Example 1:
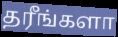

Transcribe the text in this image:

தரீங்களா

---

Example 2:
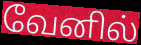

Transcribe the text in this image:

வேனில்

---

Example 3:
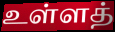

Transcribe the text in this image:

உள்ளத்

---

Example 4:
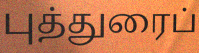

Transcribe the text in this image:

புத்துரைப்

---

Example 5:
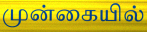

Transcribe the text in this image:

முன்கையில்